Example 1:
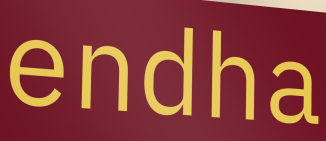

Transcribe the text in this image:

endha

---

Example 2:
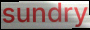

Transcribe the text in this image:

sundry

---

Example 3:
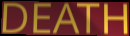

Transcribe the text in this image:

DEATH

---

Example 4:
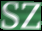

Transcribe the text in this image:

SZ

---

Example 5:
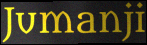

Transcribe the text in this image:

Jumanji